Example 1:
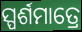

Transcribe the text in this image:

ସ୍ପର୍ଶମାତ୍ରେ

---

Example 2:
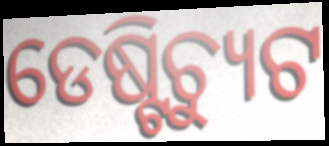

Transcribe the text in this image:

ଡେଷ୍ଟିଚ୍ୟୁଟ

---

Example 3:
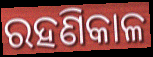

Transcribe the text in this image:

ରହଣିକାଳ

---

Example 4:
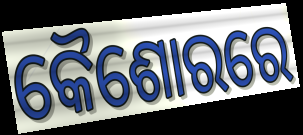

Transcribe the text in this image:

କୈଶୋରରେ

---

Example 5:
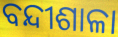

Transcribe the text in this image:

ବନ୍ଦୀଶାଳା